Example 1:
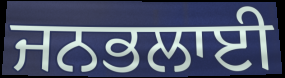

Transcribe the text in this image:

ਜਨਭਲਾਈ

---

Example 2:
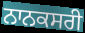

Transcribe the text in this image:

ਨਾਨਕਸਰੀ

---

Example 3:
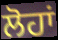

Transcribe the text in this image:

ਲੋਹਾਂ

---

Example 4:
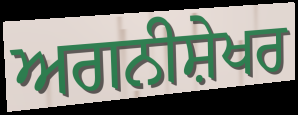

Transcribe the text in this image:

ਅਗਨੀਸ਼ੇਖਰ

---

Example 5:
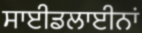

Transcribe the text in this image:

ਸਾਈਡਲਾਈਨਾਂ